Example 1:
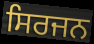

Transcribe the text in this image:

ਸਿਰਜਨ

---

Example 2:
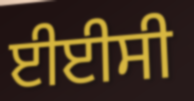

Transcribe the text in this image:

ਈਈਸੀ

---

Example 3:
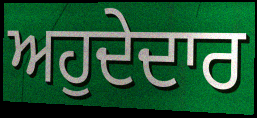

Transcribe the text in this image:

ਅਹੁਦੇਦਾਰ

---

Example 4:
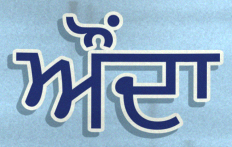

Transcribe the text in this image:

ਔਂਦਾ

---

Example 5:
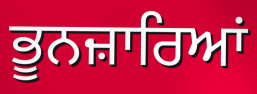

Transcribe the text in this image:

ਭੂਨਜ਼ਾਰਿਆਂ